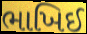
ભાખિઈ